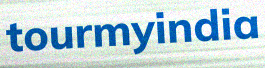
tourmyindia